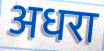
अधरा